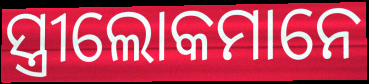
ସ୍ତ୍ରୀଲୋକମାନେ